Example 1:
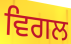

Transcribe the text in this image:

ਵਿਗਲ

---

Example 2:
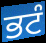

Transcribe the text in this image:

ਭਟੰ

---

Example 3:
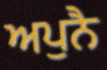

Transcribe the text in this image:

ਅਪੁਨੈ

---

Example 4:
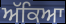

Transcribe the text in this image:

ਅੱਕਿਆ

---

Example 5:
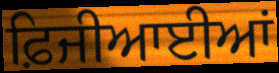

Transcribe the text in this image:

ਫ਼ਿਜੀਆਈਆਂ